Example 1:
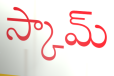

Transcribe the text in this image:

స్కామ్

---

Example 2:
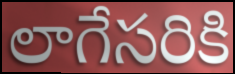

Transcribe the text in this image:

లాగేసరికి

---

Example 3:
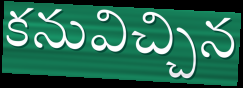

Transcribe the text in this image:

కనువిచ్చిన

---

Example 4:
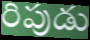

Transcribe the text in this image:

రిపుడు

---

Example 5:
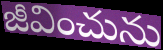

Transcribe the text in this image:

జీవించును